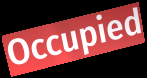
Occupied